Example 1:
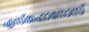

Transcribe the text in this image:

എസ്തഫാനോസ്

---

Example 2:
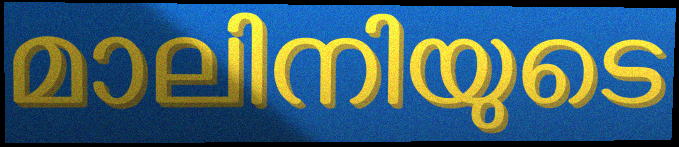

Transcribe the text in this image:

മാലിനിയുടെ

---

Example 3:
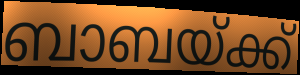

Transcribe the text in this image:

ബാബയ്ക്ക്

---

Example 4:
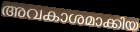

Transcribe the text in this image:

അവകാശമാക്കിയ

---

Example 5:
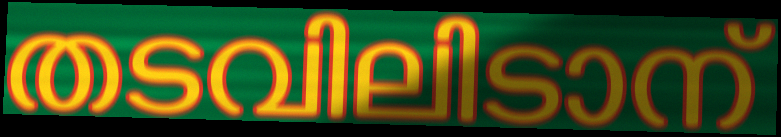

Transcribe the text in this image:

തടവിലിടാന്